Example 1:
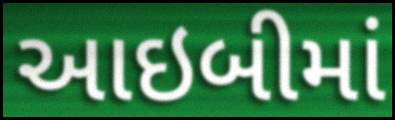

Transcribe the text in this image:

આઇબીમાં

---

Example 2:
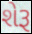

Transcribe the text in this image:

શેરૂ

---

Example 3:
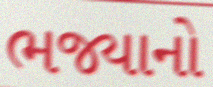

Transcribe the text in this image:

ભજ્યાનો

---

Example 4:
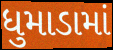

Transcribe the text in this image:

ધુમાડામાં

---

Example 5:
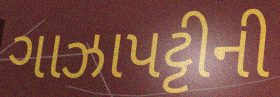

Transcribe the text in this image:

ગાઝાપટ્ટીની